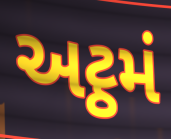
અટ્ઠમં